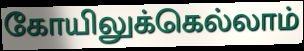
கோயிலுக்கெல்லாம்